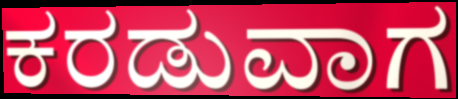
ಕರಡುವಾಗ